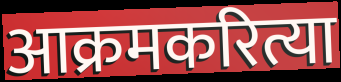
आक्रमकरित्या